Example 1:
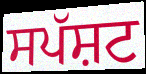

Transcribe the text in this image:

ਸਪੱਸ਼ਟ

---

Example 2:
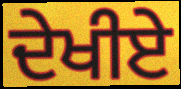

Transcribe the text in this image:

ਦੇਖੀਏ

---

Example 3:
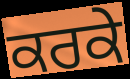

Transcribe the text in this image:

ਕਰਕੇ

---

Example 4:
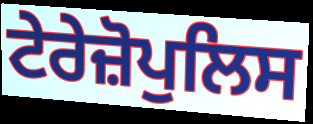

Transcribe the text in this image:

ਟੇਰੇਜ਼ੋਪੁਲਿਸ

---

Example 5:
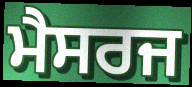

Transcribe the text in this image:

ਮੈਸਰਜ